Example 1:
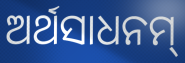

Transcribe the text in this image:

ଅର୍ଥସାଧନମ୍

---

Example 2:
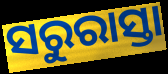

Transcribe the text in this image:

ସରୁରାସ୍ତା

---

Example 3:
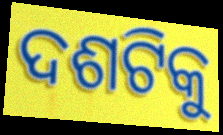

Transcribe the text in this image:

ଦଶଟିକୁ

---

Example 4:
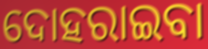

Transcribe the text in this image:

ଦୋହରାଇବା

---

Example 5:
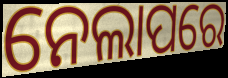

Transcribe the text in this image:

ନେଲାପରେ